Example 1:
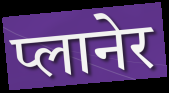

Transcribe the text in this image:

प्लानेर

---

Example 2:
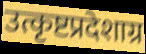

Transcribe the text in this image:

उत्कृष्टप्रदेशाग्र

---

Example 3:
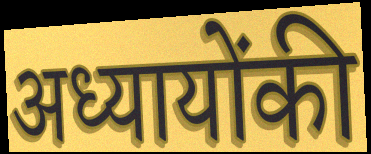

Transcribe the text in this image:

अध्यायोंकी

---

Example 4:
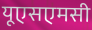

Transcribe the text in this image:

यूएसएमसी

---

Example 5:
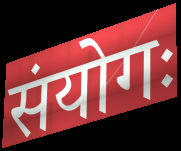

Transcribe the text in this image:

संयोगः